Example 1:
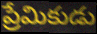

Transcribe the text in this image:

ప్రేమికుడు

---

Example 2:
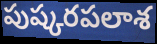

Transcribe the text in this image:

పుష్కరపలాశ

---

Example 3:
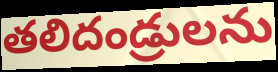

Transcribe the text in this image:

తలిదండ్రులను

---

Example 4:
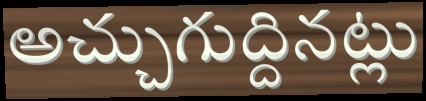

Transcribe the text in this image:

అచ్చుగుద్దినట్లు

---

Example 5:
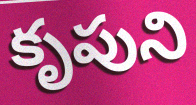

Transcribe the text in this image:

కృపుని